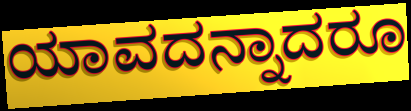
ಯಾವದನ್ನಾದರೂ